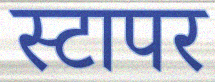
स्टापर